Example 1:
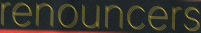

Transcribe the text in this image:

renouncers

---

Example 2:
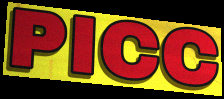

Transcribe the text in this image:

PICC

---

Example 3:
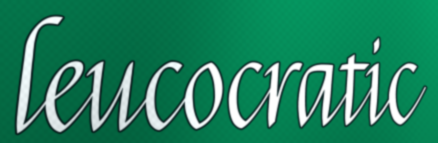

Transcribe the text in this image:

leucocratic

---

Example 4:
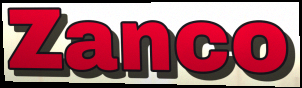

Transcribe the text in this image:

Zanco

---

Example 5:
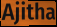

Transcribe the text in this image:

Ajitha